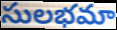
సులభమా